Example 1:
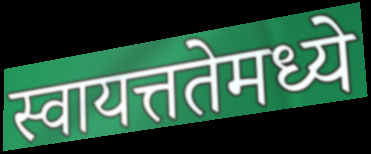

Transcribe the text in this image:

स्वायत्ततेमध्ये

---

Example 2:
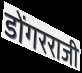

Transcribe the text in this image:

डोंगरराजी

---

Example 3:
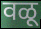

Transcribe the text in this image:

वळू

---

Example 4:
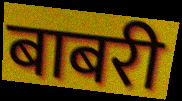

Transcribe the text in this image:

बाबरी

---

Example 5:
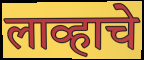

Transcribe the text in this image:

लाव्हाचे